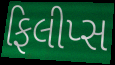
ફિલીપ્સ